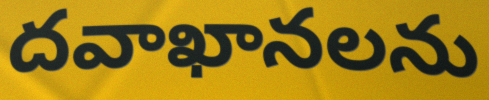
దవాఖానలను